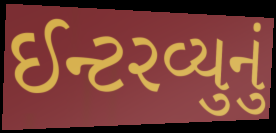
ઈન્ટરવ્યુનું